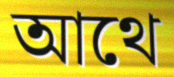
আথে